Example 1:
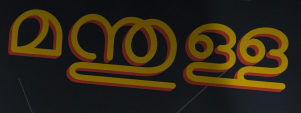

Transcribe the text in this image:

മന്തുള്ള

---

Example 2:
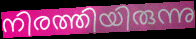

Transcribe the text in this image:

നിരത്തിയിരുന്നു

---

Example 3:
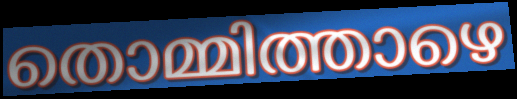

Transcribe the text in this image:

തൊമ്മിത്താഴെ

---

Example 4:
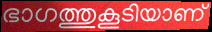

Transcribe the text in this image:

ഭാഗത്തുകൂടിയാണ്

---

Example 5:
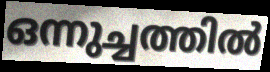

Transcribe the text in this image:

ഒന്നുച്ചത്തിൽ